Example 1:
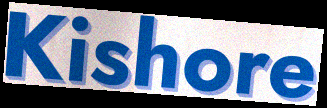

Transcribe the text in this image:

Kishore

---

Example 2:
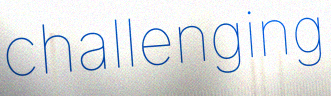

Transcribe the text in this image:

challenging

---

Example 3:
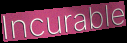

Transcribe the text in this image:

Incurable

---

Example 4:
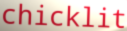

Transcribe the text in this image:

chicklit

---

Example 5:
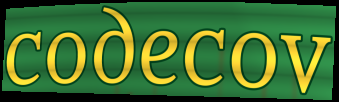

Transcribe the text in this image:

codecov